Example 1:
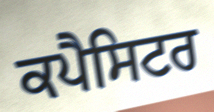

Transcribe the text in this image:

ਕਪੈਸਿਟਰ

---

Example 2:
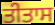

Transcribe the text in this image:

ਤੀਤਾਸ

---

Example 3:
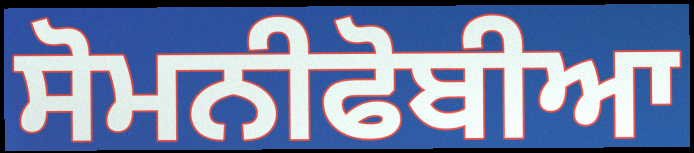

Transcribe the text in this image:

ਸੋਮਨੀਫੋਬੀਆ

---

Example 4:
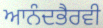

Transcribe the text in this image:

ਆਨੰਦਭੈਰਵੀ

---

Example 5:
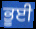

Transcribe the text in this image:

ਭੂਈ